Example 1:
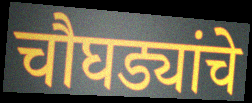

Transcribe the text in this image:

चौघड्यांचे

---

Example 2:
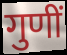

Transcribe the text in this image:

गुणीं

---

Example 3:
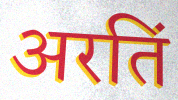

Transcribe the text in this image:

अरतिं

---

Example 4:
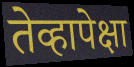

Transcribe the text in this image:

तेव्हापेक्षा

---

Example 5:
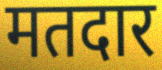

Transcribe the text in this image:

मतदार